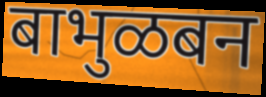
बाभुळबन